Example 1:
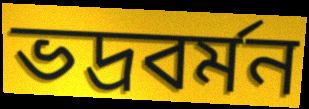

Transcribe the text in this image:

ভদ্রবর্মন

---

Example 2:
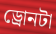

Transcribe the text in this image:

ড্রোনটা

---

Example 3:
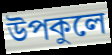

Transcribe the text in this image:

উপকুলে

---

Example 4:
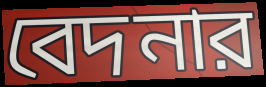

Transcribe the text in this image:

বেদনার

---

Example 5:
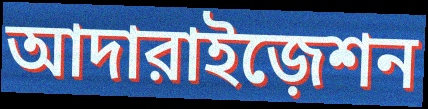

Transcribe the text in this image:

আদারাইজ়েশন